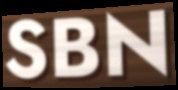
SBN